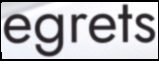
egrets